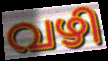
വഴി